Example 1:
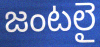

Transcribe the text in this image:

జంటలై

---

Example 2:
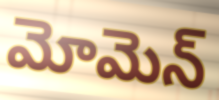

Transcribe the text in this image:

మోమెన్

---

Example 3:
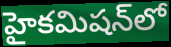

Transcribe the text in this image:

హైకమిషన్‌లో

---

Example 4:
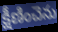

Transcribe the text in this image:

క్షీణించెను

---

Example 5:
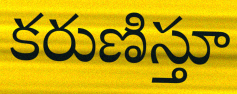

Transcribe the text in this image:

కరుణిస్తూ